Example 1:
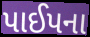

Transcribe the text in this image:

પાઈપના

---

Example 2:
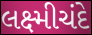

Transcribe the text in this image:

લક્ષ્મીચંદે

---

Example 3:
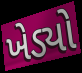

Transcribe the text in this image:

ખેડ્યો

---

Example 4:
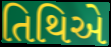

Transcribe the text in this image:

તિથિએ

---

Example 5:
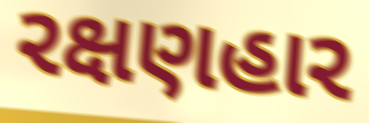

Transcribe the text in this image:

રક્ષણહાર